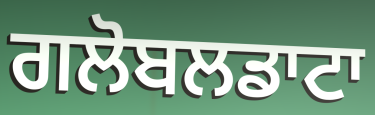
ਗਲੋਬਲਡਾਟਾ